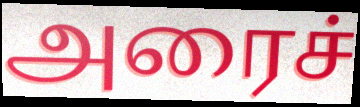
அரைச்